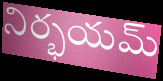
నిర్భయమ్